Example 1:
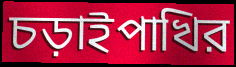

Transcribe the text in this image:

চড়াইপাখির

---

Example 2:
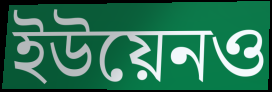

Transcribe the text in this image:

ইউয়েনও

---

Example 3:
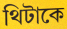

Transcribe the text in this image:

থিটাকে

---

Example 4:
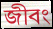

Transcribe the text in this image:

জীবং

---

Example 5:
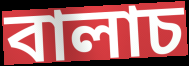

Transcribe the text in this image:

বালাচ